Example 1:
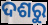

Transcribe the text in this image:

ଦଶରୁ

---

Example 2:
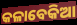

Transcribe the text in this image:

କଳାବେକିଆ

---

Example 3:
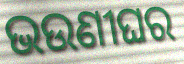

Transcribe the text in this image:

ଭଉଣୀଘର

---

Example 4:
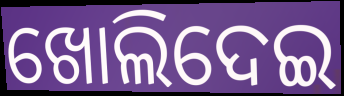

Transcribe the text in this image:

ଖୋଲିଦେଇ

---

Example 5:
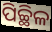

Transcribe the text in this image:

ପିଚ୍ଛିଳ